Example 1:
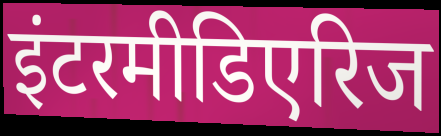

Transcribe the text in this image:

इंटरमीडिएरिज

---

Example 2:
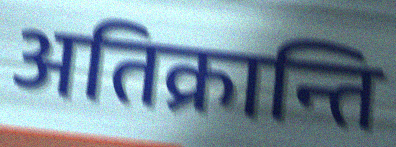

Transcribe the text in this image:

अतिक्रान्ति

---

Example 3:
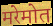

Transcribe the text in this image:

मरेमोत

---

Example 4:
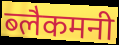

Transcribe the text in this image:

ब्‍लैकमनी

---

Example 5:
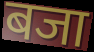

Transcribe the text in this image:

बजा